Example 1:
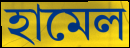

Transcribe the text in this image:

হামেল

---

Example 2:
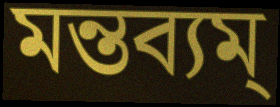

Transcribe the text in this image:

মন্তব্যম্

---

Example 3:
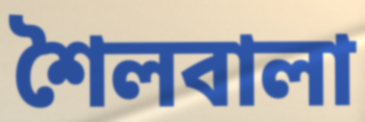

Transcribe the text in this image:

শৈলবালা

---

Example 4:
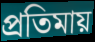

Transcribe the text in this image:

প্রতিমায়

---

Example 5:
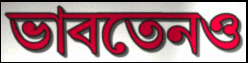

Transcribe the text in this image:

ভাবতেনও